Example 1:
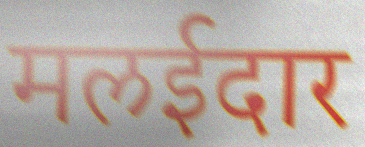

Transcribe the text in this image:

मलईदार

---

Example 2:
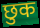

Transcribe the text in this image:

छुक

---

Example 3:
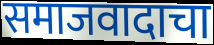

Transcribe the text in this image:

समाजवादाचा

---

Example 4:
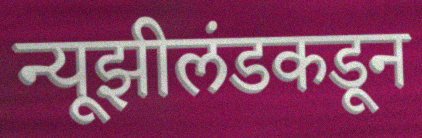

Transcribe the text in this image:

न्यूझीलंडकडून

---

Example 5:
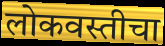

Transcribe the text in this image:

लोकवस्तीचा